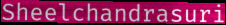
Sheelchandrasuri